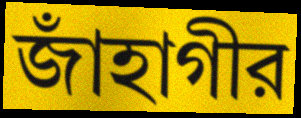
জাঁহাগীর